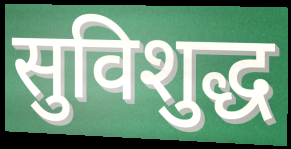
सुविशुद्ध